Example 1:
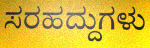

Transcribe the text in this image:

ಸರಹದ್ದುಗಳು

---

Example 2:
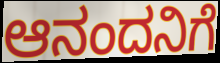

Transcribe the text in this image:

ಆನಂದನಿಗೆ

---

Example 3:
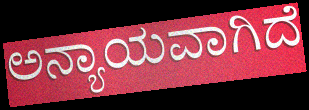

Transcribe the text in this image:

ಅನ್ಯಾಯವಾಗಿದೆ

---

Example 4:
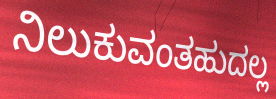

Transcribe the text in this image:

ನಿಲುಕುವಂತಹುದಲ್ಲ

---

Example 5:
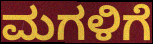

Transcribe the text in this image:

ಮಗಳಿಗೆ